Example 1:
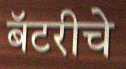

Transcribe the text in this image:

बॅटरीचे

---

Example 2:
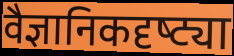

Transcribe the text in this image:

वैज्ञानिकदृष्ट्या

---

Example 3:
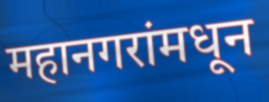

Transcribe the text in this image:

महानगरांमधून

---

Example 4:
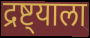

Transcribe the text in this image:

द्रष्ट्याला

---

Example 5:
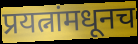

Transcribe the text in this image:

प्रयत्नांमधूनच